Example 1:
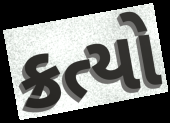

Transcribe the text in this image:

ક્રત્યો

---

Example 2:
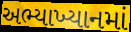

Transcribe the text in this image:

અભ્યાખ્યાનમાં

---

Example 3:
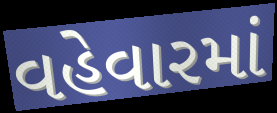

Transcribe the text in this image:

વહેવારમાં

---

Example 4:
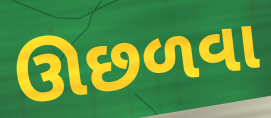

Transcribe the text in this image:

ઊછળવા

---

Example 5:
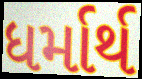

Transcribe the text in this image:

ધર્માર્થ